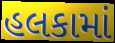
હલકામાં